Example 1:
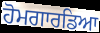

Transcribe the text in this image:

ਹੋਮਗਾਰਡਿਆ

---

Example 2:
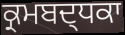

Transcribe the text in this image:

ਕ੍ਰਮਬਦ੍ਧਕਾ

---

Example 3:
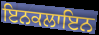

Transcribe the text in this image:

ਇਨਕਲਾਇਨ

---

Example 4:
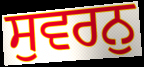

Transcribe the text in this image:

ਸੁਵਰਨੁ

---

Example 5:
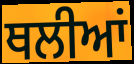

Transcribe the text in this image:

ਥਲੀਆਂ